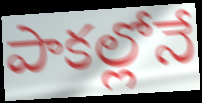
పాకల్లోనే